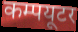
कम्पयूटर